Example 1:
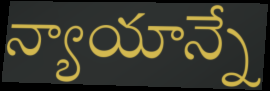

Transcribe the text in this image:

న్యాయాన్నే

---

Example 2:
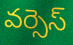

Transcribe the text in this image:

వర్సెస్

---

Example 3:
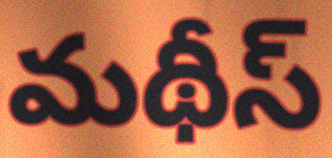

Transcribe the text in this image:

మథీస్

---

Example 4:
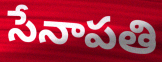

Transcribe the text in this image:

సేనాపతి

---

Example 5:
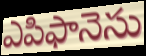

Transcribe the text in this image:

ఎపిఫానెసు